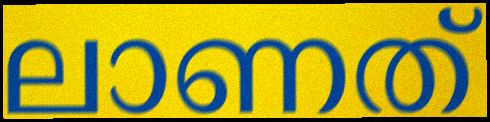
ലാണത്